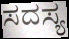
ಸದಸ್ಯ